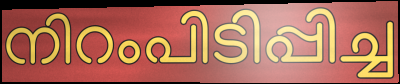
നിറംപിടിപ്പിച്ച